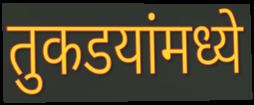
तुकडयांमध्ये